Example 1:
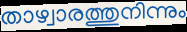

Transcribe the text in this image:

താഴ്വാരത്തുനിന്നും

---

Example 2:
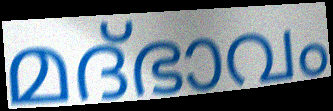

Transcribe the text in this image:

മദ്ഭാവം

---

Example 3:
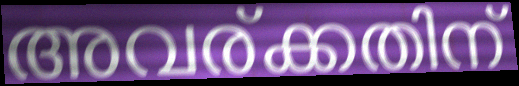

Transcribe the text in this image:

അവര്ക്കതിന്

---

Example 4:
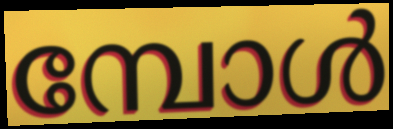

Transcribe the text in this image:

മ്പോൾ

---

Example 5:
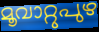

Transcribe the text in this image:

മൂവാറ്റുപുഴ